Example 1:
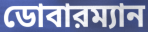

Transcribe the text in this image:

ডোবারম্যান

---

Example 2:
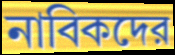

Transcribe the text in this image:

নাবিকদের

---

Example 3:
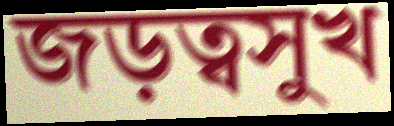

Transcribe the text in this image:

জড়ত্বসুখ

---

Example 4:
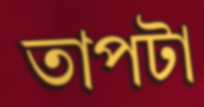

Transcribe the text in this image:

তাপটা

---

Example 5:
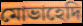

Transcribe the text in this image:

মোভাহেদি